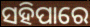
ସହିପାରେ